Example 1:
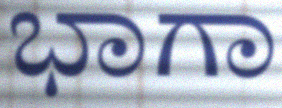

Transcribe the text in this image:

ಭಾಗಾ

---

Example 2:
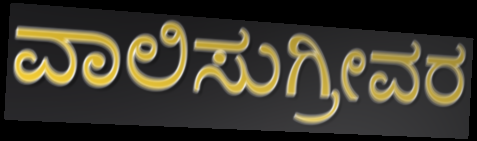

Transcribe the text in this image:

ವಾಲಿಸುಗ್ರೀವರ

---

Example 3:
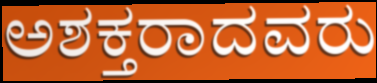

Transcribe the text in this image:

ಅಶಕ್ತರಾದವರು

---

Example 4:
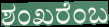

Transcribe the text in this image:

ಶಂಖರೆಂಬ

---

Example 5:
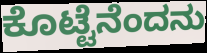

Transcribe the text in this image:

ಕೊಟ್ಟೆನೆಂದನು